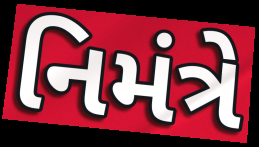
નિમંત્રે